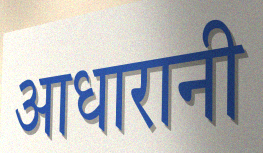
आधारानी